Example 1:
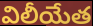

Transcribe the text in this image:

విలీయేత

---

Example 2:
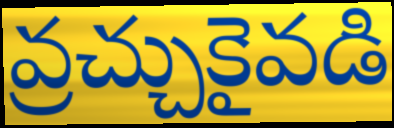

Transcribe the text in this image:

వ్రచ్చుకైవడి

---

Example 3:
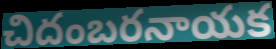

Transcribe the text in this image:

చిదంబరనాయక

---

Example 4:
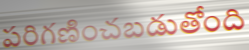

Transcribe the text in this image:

పరిగణించబడుతోంది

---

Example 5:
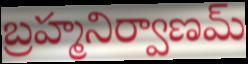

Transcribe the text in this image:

బ్రహ్మనిర్వాణమ్